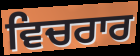
ਵਿਚਰਾਰ